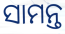
ସାମନ୍ତ